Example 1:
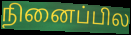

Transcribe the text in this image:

நினைப்பில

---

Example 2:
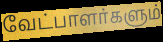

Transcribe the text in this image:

வேட்பாளர்களும்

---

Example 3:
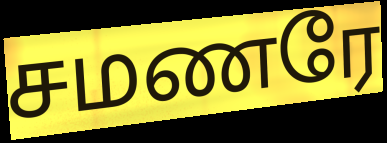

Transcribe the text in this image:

சமணரே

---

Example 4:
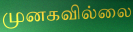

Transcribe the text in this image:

முனகவில்லை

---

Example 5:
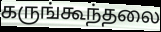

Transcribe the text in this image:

கருங்கூந்தலை